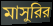
মাসুরির